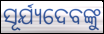
ସୂର୍ଯ୍ୟଦେବଙ୍କୁ